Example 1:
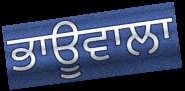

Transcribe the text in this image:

ਭਾਊਵਾਲਾ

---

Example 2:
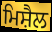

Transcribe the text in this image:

ਮਿਸ਼ੈਲ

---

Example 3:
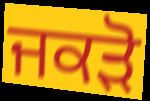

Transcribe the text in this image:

ਜਕੜੋ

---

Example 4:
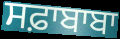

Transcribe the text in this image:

ਸਫ਼ਾਬਾਬਾ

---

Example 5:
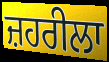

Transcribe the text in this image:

ਜ਼ਹਰੀਲਾ